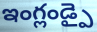
ఇంగ్లండ్పై